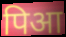
पिआ